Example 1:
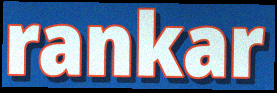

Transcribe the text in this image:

rankar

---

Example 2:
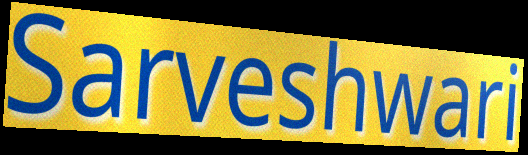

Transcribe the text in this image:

Sarveshwari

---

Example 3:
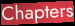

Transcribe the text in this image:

Chapters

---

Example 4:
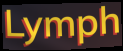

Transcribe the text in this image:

Lymph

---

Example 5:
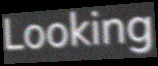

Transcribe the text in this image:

Looking